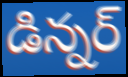
డిన్నర్